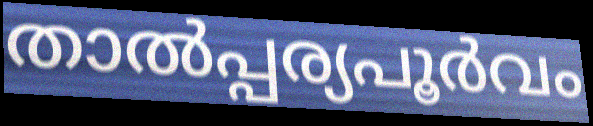
താൽപ്പര്യപൂർവം